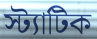
স্ট্যাটিক